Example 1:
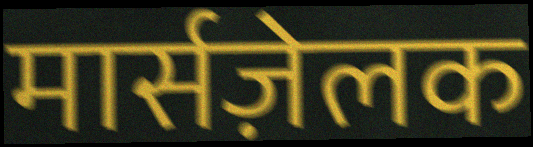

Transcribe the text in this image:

मार्सज़ेलक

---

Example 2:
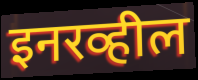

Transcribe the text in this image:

इनरव्हील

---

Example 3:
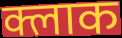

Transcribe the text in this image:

क्लाक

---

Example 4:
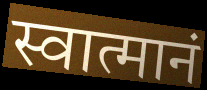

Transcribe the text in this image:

स्वात्मानं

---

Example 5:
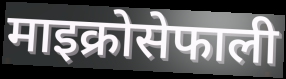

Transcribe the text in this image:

माइक्रोसेफाली